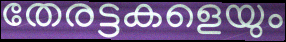
തേരട്ടകളെയും